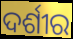
ଦର୍ଶୀର